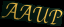
AAUP